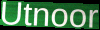
Utnoor